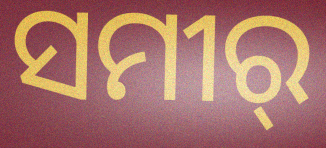
ସମୀର୍